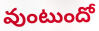
వుంటుందో